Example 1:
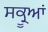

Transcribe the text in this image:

ਸਕ੍ਰੂਆਂ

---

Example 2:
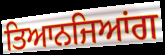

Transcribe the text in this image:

ਤਿਆਨਜਿਆਂਗ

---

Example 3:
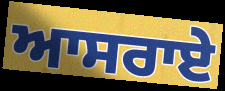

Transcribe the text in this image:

ਆਸਰਾਏ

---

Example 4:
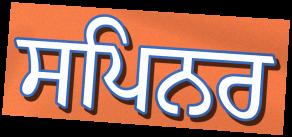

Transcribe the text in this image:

ਸਪਿਨਰ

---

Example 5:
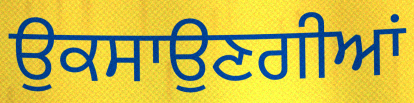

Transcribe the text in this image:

ਉਕਸਾਉਣਗੀਆਂ